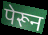
पेरून